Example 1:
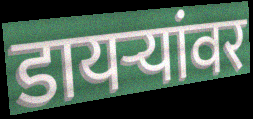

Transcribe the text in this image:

डायऱ्यांवर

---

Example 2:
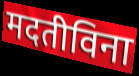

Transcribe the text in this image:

मदतीविना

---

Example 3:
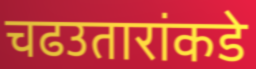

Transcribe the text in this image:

चढउतारांकडे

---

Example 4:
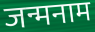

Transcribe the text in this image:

जन्मनाम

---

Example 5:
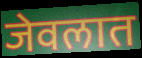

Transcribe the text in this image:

जेवलात